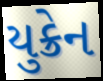
યુક્રેન